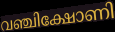
വഞ്ചിക്ഷോണി